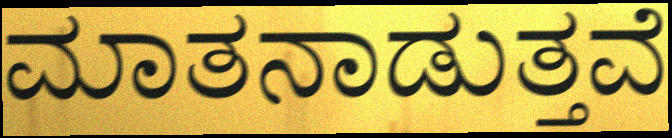
ಮಾತನಾಡುತ್ತವೆ